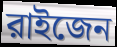
রাইজেন